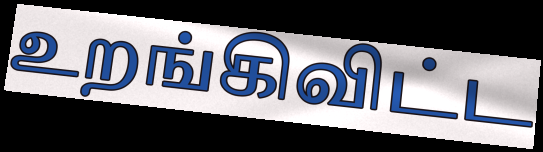
உறங்கிவிட்ட